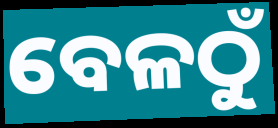
ବେଳଠୁଁ